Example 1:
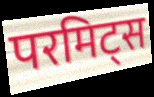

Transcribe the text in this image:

परमिट्स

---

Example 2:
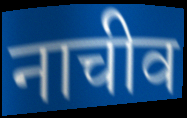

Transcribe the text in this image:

नाचीव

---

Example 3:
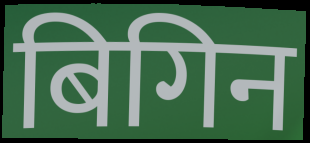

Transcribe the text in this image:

बिगिन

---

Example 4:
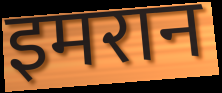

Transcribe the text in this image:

इमरान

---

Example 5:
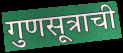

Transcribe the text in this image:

गुणसूत्राची